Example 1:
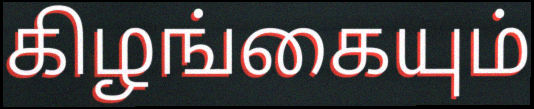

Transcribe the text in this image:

கிழங்கையும்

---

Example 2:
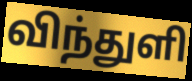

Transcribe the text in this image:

விந்துளி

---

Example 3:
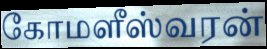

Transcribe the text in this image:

கோமளீஸ்வரன்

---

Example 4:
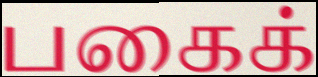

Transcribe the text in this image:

பகைக்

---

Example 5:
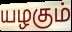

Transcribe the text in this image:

யழகும்